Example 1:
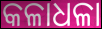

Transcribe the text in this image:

କଳାଧଳା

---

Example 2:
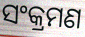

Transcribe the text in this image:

ସଂକ୍ରମଣ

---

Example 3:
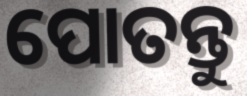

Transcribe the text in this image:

ପୋତନ୍ତୁ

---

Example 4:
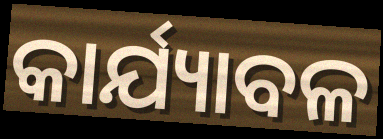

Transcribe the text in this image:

କାର୍ଯ୍ୟାବଳ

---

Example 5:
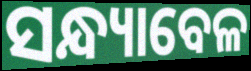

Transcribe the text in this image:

ସନ୍ଧ୍ୟାବେଳ